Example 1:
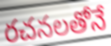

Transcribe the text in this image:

రచనలతోనే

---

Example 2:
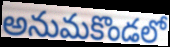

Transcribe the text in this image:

అనుమకొండలో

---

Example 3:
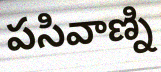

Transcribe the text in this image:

పసివాణ్ని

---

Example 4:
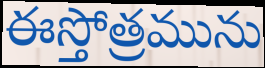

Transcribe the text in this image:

ఈస్తోత్రమును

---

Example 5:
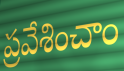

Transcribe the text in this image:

ప్రవేశించాం